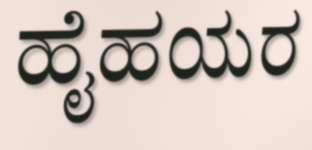
ಹೈಹಯರ